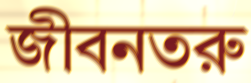
জীবনতরু